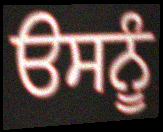
ੳਸਨੂੰ